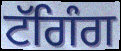
ਟੱਗਿੰਗ